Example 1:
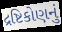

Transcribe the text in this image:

દ્રષ્ટિકોણનું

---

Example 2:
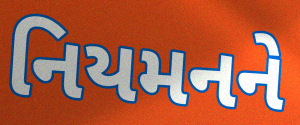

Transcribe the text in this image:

નિયમનને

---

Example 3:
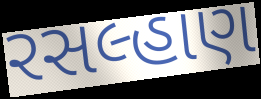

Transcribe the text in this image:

રસલ્હાણ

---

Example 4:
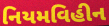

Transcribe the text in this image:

નિયમવિહીન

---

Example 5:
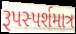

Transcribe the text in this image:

રૂપસ્પર્શમાત્ર